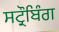
ਸਟ੍ਰੌਬਿੰਗ